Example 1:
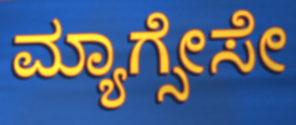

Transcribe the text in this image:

ಮ್ಯಾಗ್ಸೇಸೇ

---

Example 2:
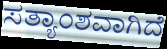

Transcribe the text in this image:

ಸತ್ಯಾಂಶವಾಗಿದೆ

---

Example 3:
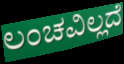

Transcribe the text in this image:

ಲಂಚವಿಲ್ಲದೆ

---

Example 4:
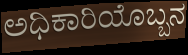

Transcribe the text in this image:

ಅಧಿಕಾರಿಯೊಬ್ಬನ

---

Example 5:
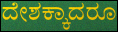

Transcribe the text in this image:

ದೇಶಕ್ಕಾದರೂ